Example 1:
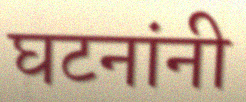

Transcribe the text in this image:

घटनांनी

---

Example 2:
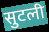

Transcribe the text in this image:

सुटली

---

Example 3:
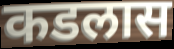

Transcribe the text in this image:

कडलास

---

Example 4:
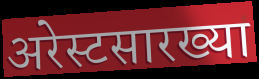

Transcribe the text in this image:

अरेस्टसारख्या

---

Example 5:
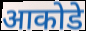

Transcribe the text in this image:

आकोडे